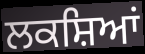
ਲਕਸ਼ਿਆਂ